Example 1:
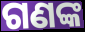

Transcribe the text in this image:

ଗଣଙ୍କ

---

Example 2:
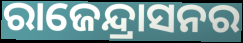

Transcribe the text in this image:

ରାଜେନ୍ଦ୍ରାସନର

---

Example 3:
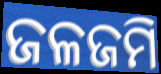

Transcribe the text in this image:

ଜଳଜମି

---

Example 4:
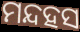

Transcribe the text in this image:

ମନ୍ଦହସ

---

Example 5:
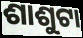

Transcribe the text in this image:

ଶାଶୁଟା